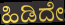
ಹಿಡಿದೇ